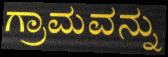
ಗ್ರಾಮವನ್ನು